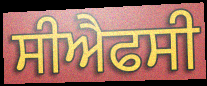
ਸੀਐਫਸੀ